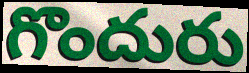
గొందురు